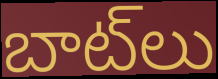
బాట్‌లు